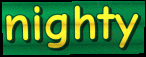
nighty